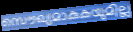
സൌഖ്യമാകുകയുമില്ല